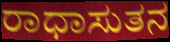
ರಾಧಾಸುತನ